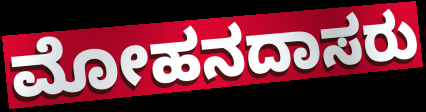
ಮೋಹನದಾಸರು